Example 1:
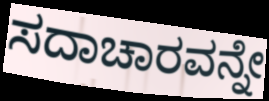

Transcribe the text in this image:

ಸದಾಚಾರವನ್ನೇ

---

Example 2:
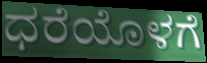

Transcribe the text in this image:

ಧರೆಯೊಳಗೆ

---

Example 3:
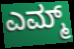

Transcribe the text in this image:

ಎಮ್ಮ್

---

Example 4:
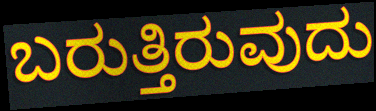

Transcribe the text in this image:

ಬರುತ್ತಿರುವುದು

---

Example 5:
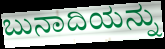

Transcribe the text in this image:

ಬುನಾದಿಯನ್ನು